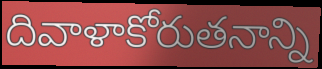
దివాళాకోరుతనాన్ని